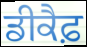
ਡੀਕੈਫ਼